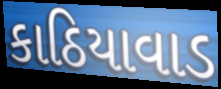
કાઠિયાવાડ